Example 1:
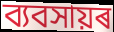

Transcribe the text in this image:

ব্যবসায়ৰ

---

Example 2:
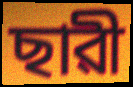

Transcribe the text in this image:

ছাৱী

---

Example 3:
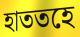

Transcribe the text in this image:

হাততহে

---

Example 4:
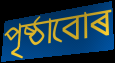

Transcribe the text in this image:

পৃষ্ঠাবোৰ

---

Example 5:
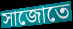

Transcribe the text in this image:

সাজোতে